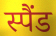
स्पैंड